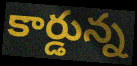
కార్డున్న